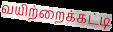
வயிற்றைக்கட்டி